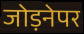
जोड़नेपर